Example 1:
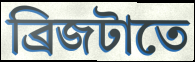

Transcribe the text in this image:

ব্রিজটাতে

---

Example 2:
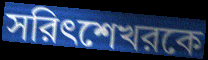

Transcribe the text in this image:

সরিৎশেখরকে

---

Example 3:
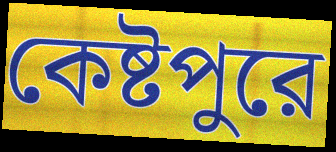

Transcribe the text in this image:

কেষ্টপুরে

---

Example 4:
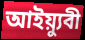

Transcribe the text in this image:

আইয়্যুবী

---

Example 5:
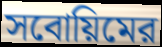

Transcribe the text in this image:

সবোয়িমের